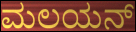
ಮಲಯನ್